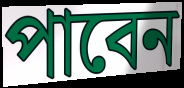
পাবেন